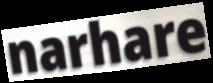
narhare